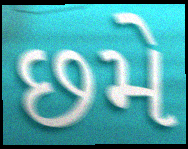
છમે